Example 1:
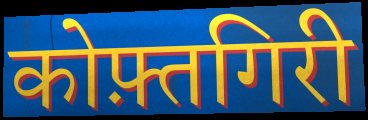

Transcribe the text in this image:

कोफ़्तगिरी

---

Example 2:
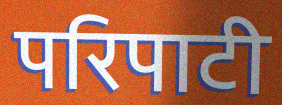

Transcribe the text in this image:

परिपाटी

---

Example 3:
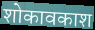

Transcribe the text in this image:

शोकावकाश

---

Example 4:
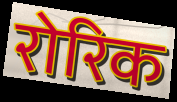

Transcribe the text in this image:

रोरिक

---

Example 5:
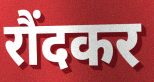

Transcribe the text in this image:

रौंदकर